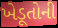
ખેડૂતોની